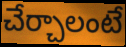
చేర్చాలంటే